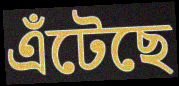
এঁটেছে